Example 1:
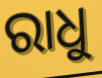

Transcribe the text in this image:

ରାଧୁ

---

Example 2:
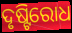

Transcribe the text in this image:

ଦୃଷ୍ଟିରୋଧ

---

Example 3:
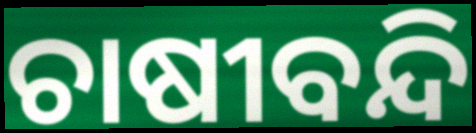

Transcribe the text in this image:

ଚାଷୀବନ୍ଦି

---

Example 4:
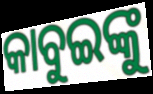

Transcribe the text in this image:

କାବୁଇଙ୍କୁ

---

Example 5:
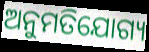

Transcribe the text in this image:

ଅନୁମତିଯୋଗ୍ୟ